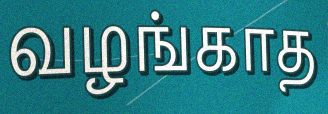
வழங்காத